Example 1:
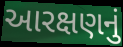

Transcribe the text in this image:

આરક્ષણનું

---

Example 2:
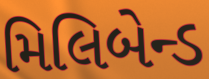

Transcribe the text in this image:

મિલિબેન્ડ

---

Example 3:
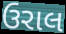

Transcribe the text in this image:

ઉરાલ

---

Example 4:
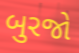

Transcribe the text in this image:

બુરજો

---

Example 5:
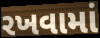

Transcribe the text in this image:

રખવામાં